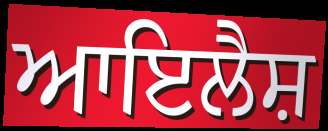
ਆਇਲੈਸ਼